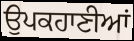
ਉਪਕਹਾਣੀਆਂ